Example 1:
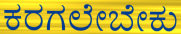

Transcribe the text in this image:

ಕರಗಲೇಬೇಕು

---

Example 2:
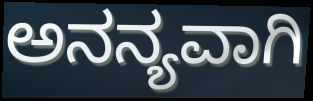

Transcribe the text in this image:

ಅನನ್ಯವಾಗಿ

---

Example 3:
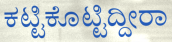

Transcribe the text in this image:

ಕಟ್ಟಿಕೊಟ್ಟಿದ್ದೀರಾ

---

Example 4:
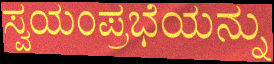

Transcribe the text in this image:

ಸ್ವಯಂಪ್ರಭೆಯನ್ನು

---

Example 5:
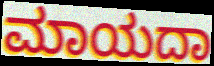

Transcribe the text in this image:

ಮಾಯದಾ